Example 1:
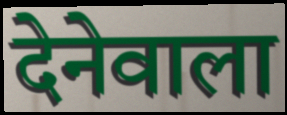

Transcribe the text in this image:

देनेवाला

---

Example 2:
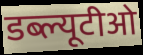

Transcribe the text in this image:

डब्ल्यूटीओ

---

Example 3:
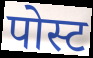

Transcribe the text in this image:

पोस्ट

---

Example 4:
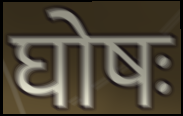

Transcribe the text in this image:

घोषः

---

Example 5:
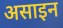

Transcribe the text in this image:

असाइन